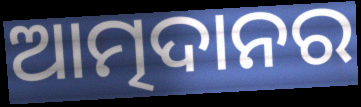
ଆତ୍ମଦାନର